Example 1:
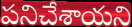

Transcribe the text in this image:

పనిచేశాయని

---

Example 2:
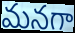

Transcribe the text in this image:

మనగా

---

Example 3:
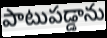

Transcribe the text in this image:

పాటుపడ్డాను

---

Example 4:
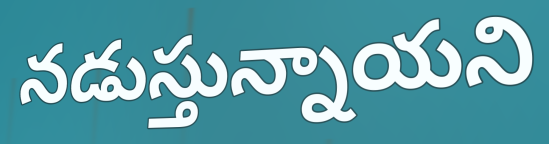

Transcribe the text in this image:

నడుస్తున్నాయని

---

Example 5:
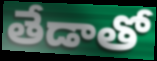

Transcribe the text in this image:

తేడాతో